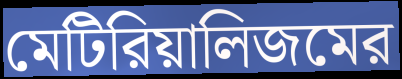
মেটিরিয়ালিজমের